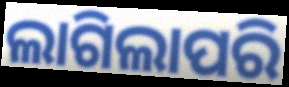
ଲାଗିଲାପରି